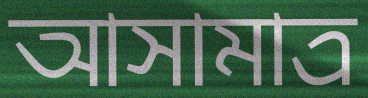
আসামাত্র